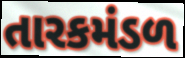
તારકમંડળ